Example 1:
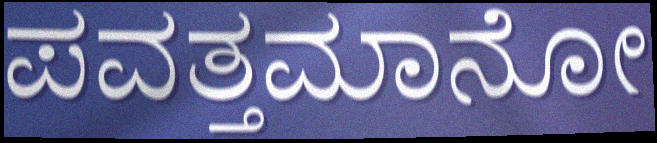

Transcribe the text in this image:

ಪವತ್ತಮಾನೋ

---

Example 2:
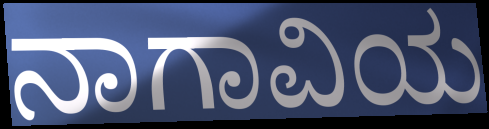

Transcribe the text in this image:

ನಾಗಾವಿಯ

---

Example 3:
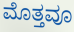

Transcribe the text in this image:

ಮೊತ್ತವೂ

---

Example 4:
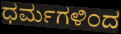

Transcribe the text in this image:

ಧರ್ಮಗಳಿಂದ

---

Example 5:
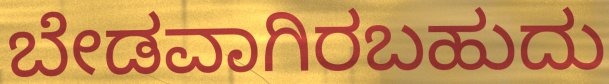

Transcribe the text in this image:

ಬೇಡವಾಗಿರಬಹುದು